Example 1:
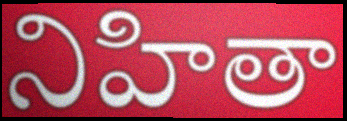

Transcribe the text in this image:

నిహితా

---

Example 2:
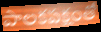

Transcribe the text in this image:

పాలకపక్షంతో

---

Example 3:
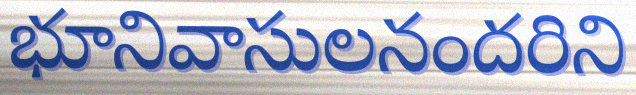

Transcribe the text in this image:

భూనివాసులనందరిని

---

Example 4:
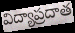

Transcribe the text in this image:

విద్యాప్రదాత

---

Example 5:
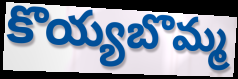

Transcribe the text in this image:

కొయ్యబొమ్మ